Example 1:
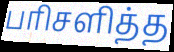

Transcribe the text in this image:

பரிசளித்த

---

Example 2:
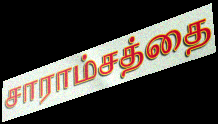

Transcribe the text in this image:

சாராம்சத்தை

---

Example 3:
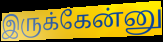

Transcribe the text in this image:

இருக்கேன்னு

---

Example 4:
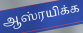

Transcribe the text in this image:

ஆஸ்ரயிக்க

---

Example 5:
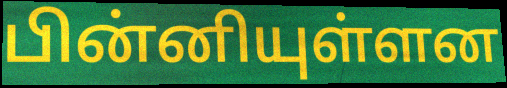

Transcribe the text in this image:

பின்னியுள்ளன